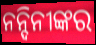
ନନ୍ଦିନୀଙ୍କର